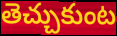
తెచ్చుకుంట